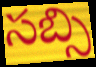
సబ్సి